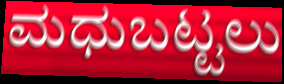
ಮಧುಬಟ್ಟಲು